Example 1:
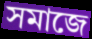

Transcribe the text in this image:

সমাজে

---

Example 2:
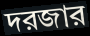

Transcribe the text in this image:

দরজার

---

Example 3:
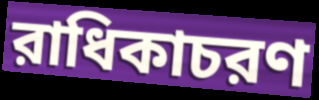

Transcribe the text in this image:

রাধিকাচরণ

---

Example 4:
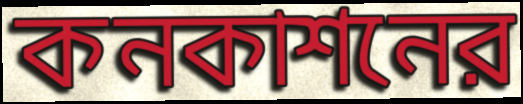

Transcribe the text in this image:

কনকাশনের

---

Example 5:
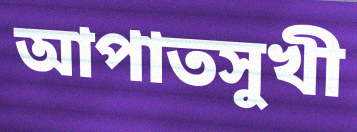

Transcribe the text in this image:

আপাতসুখী